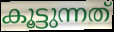
കൂട്ടുന്നത്